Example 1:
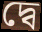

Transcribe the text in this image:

দ্বে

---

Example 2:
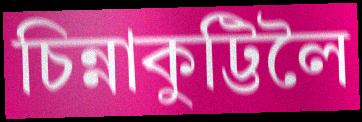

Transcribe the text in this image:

চিন্নাকুট্টিলৈ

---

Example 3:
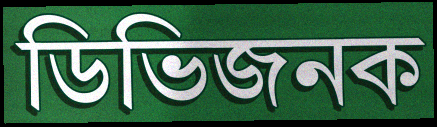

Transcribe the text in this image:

ডিভিজনক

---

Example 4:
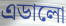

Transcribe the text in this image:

এডালো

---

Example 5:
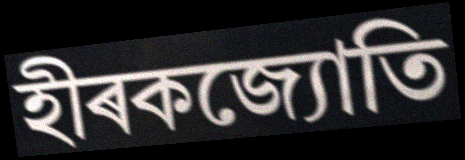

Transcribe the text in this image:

হীৰকজ্যোতি